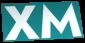
XM